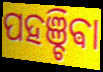
ପହଞ୍ଚିଵା